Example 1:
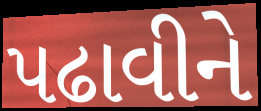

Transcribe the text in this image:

પઢાવીને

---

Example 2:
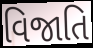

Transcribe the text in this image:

વિજાતિ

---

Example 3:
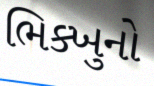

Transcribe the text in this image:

ભિક્ખુનો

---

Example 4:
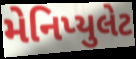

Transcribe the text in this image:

મેનિપ્યુલેટ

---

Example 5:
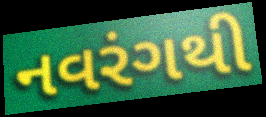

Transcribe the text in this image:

નવરંગથી